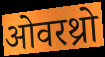
ओवरथ्रो